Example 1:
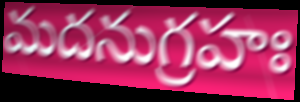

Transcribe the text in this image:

మదనుగ్రహః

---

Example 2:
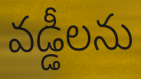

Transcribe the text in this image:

వడ్డీలను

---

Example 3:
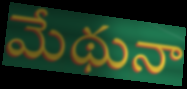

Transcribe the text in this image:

మేథునా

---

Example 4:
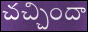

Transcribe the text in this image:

చచ్చిందా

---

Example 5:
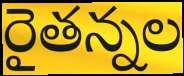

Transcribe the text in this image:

రైతన్నల